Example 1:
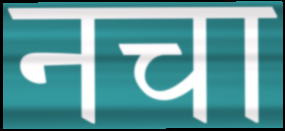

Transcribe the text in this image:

नचा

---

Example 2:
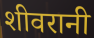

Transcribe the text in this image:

शीवरानी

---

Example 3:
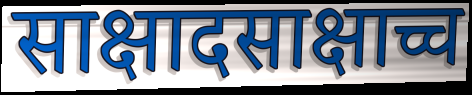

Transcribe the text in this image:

साक्षादसाक्षाच्च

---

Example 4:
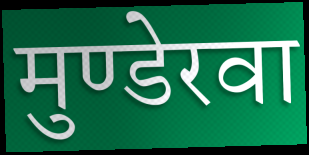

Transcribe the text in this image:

मुण्डेरवा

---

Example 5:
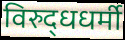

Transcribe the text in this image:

विरुद्धधर्मी